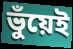
ভুঁয়েই